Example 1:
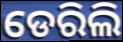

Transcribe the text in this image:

ଡେରିଲି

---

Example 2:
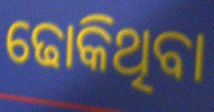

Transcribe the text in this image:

ଢୋକିଥିବା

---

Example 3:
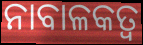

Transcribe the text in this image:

ନାବାଳକତ୍ଵ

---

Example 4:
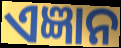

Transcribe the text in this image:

ଏଜ୍ଞାନ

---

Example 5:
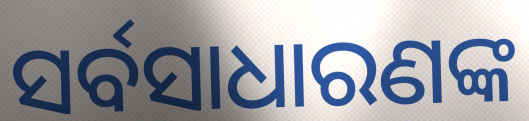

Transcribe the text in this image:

ସର୍ବସାଧାରଣଙ୍କ